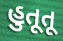
હુતૂતૂ